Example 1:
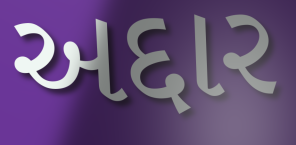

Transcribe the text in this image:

અદ્દાર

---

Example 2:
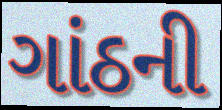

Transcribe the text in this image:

ગાંઠની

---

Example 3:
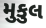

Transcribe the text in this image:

મુકુલ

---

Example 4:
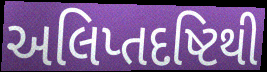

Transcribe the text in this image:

અલિપ્તદષ્ટિથી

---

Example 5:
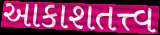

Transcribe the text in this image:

આકાશતત્ત્વ